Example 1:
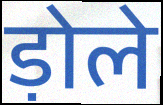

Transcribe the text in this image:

ड़ोले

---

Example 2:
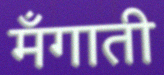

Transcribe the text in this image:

मँगाती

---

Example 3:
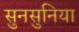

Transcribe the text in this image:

सुनसुनिया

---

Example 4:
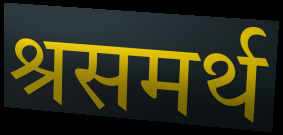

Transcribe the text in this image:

श्रसमर्थ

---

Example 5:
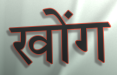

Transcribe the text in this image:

खोंग